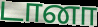
டானா